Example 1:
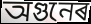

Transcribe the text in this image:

অগুনেৰ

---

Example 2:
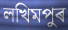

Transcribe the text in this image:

লখিমপুৰ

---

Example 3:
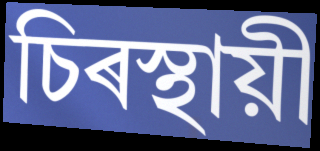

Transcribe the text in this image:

চিৰস্থায়ী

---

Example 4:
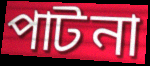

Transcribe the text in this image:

পাটনা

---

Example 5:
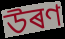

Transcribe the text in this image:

উৰণ